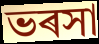
ভৰসা